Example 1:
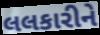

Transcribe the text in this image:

લલકારીને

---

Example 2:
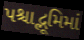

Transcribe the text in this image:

પશ્ચાદ્ભૂમિમાં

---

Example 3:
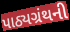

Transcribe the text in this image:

પાઠ્યગ્રંથની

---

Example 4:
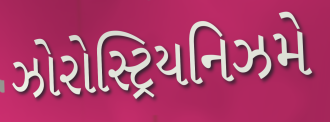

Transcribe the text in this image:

ઝોરોસ્ટ્રિયનિઝમે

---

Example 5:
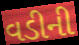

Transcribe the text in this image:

વડીની